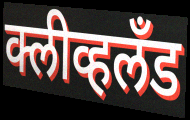
क्लीव्हलँड